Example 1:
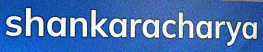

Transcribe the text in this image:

shankaracharya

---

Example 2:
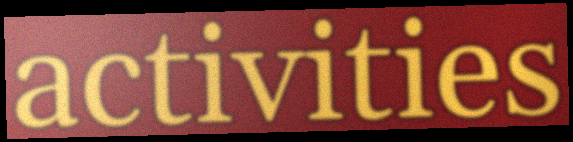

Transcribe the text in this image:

activities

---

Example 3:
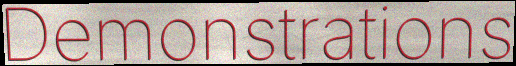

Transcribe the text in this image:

Demonstrations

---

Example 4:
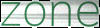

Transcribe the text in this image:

zone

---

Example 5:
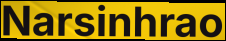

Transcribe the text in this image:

Narsinhrao